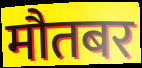
मौतबर